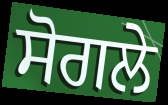
ਸੋਗਲੇ